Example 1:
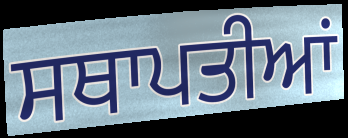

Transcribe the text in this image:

ਸਥਾਪਤੀਆਂ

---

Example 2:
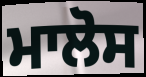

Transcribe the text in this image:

ਮਾਲੋਸ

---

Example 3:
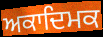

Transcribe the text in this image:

ਅਕਾਦਿਮਕ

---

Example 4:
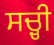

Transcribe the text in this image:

ਸਚ੍ਚੀ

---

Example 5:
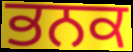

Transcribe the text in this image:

ਭਨਕ